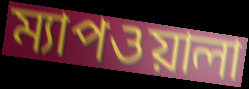
ম্যাপওয়ালা